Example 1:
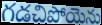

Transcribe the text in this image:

గడచిపోయెను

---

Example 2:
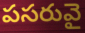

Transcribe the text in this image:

పసరువై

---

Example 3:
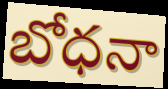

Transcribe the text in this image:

బోధనా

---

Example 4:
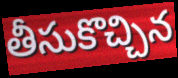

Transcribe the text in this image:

తీసుకొచ్చిన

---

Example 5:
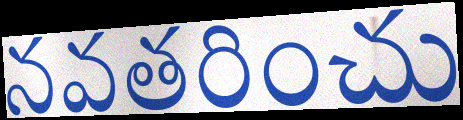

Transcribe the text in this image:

నవతరించు